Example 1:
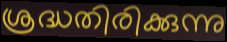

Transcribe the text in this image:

ശ്രദ്ധതിരിക്കുന്നു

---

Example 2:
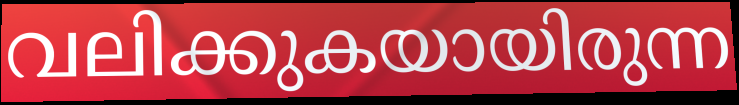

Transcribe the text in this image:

വലിക്കുകയായിരുന്ന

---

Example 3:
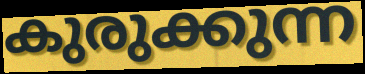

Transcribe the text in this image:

കുരുക്കുന്ന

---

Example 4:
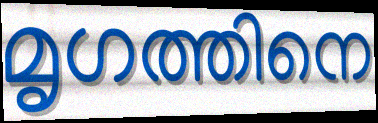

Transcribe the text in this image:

മൃഗത്തിനെ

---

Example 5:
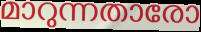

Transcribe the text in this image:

മാറുന്നതാരോ